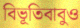
বিভূতিবাবুও